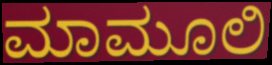
ಮಾಮೂಲಿ